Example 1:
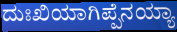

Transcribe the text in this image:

ದುಃಖಿಯಾಗಿಪ್ಪೆನಯ್ಯಾ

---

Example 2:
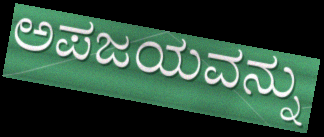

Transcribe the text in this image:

ಅಪಜಯವನ್ನು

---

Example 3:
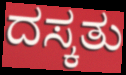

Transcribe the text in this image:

ದಸ್ಕತು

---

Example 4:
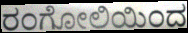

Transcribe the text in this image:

ರಂಗೋಲಿಯಿಂದ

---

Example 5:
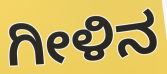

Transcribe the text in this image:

ಗೀಳಿನ